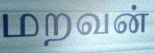
மறவன்